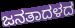
ಜನತಾದಳದ